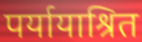
पर्यायाश्रित